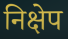
निक्षेप